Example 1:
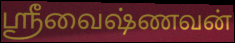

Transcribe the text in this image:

ஸ்ரீவைஷ்ணவன்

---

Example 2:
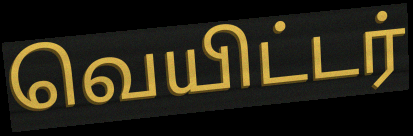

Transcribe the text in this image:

வெயிட்டர்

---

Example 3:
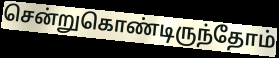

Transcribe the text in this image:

சென்றுகொண்டிருந்தோம்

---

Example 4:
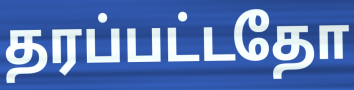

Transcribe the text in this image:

தரப்பட்டதோ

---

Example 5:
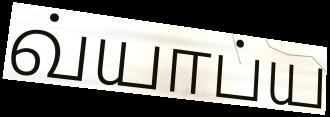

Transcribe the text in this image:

வ்யாப்ய